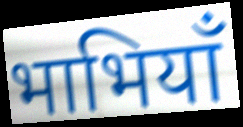
भाभियाँ